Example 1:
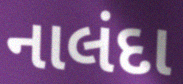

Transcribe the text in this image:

નાલંદા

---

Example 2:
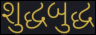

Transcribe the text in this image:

શુદ્ધબુદ્ધ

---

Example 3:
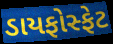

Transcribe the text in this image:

ડાયફોસ્ફેટ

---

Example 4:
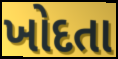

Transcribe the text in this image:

ખોદતા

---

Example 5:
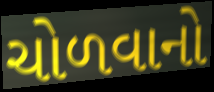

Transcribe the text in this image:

ચોળવાનો